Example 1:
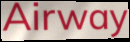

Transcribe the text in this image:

Airway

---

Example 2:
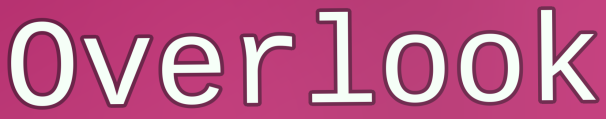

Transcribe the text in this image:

Overlook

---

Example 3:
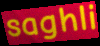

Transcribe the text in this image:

saghli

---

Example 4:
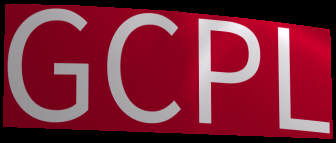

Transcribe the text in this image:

GCPL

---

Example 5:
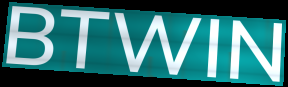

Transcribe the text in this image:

BTWIN